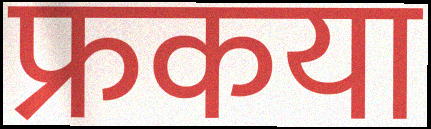
फ्रकया